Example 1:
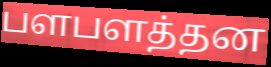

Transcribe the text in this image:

பளபளத்தன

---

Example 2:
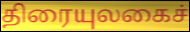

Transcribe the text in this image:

திரையுலகைச்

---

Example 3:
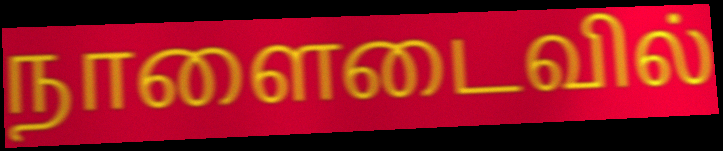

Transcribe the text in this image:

நாளைடைவில்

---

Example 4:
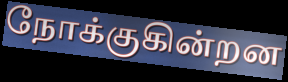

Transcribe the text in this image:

நோக்குகின்றன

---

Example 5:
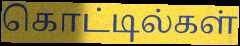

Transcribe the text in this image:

கொட்டில்கள்